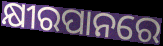
କ୍ଷୀରପାନରେ